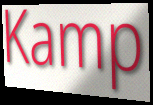
Kamp